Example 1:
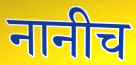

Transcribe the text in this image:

नानीच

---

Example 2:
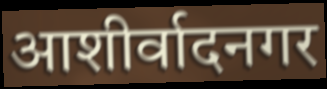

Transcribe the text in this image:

आशीर्वादनगर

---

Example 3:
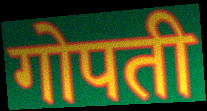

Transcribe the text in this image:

गोपती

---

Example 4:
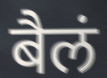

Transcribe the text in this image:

बैलं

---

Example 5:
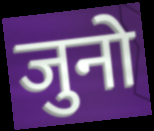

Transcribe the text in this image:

जुनो